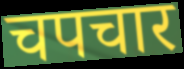
चपचार